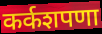
कर्कशपणा